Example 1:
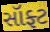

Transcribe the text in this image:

સૉફ્ટ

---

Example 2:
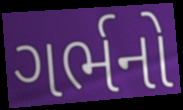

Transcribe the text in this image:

ગર્ભનો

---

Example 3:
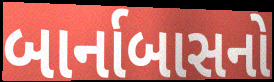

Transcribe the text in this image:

બાર્નાબાસનો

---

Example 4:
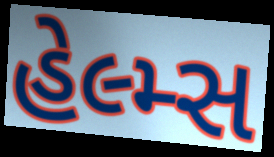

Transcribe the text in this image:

હેલ્મ્સ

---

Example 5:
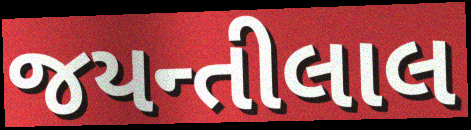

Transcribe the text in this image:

જયન્તીલાલ